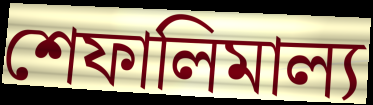
শেফালিমাল্য